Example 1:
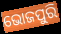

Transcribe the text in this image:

ଭୋଜପୁରି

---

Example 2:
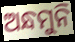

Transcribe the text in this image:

ଅନ୍ଧମୁନି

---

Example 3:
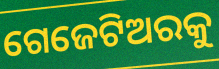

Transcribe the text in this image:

ଗେଜେଟିଅରକୁ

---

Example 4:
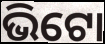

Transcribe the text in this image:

ଭିଟୋ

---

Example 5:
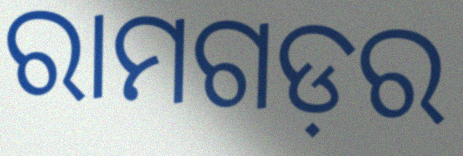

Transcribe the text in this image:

ରାମଗଡ଼ର